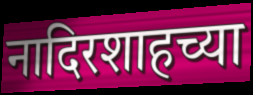
नादिरशाहच्या